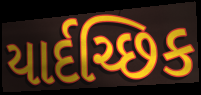
યાર્દચ્છિક